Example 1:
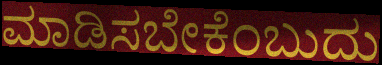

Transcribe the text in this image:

ಮಾಡಿಸಬೇಕೆಂಬುದು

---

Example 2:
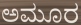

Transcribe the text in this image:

ಅಮೂರ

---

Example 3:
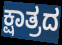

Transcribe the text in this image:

ಕ್ಷಾತ್ರದ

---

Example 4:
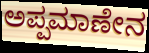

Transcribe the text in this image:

ಅಪ್ಪಮಾಣೇನ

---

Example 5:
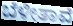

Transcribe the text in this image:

ಬೆಳೀತಾವೆ